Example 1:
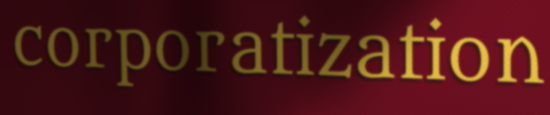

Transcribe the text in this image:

corporatization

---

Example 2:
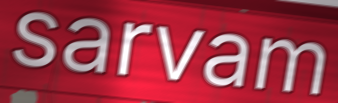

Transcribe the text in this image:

sarvam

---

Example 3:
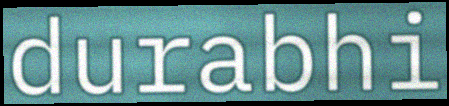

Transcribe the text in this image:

durabhi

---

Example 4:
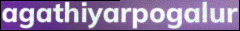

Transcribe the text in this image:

agathiyarpogalur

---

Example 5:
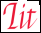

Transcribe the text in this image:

Iit